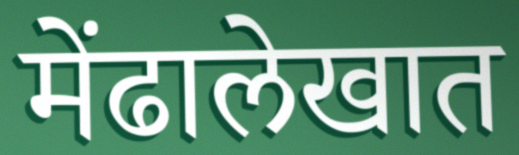
मेंढालेखात